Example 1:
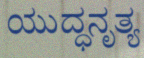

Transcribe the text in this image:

ಯುದ್ಧನೃತ್ಯ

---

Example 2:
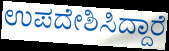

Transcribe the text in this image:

ಉಪದೇಶಿಸಿದ್ದಾರೆ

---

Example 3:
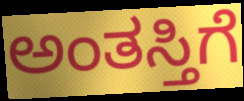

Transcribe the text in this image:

ಅಂತಸ್ತಿಗೆ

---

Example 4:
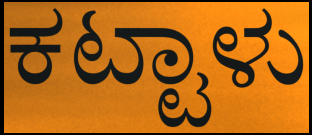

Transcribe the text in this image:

ಕಟ್ಟಾಳು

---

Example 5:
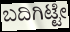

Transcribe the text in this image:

ಬದಿಗಿಟ್ಟೇ